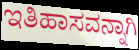
ಇತಿಹಾಸವನ್ನಾಗಿ